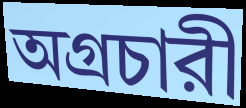
অগ্রচারী